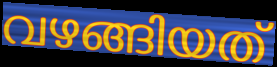
വഴങ്ങിയത്